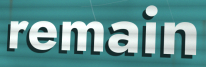
remain